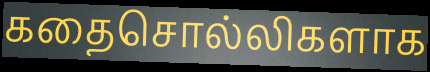
கதைசொல்லிகளாக